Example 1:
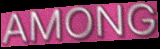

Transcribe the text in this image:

AMONG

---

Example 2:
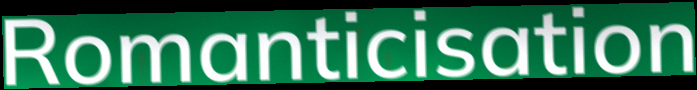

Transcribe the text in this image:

Romanticisation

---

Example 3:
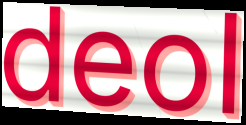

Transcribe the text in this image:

deol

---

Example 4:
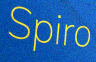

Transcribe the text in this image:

Spiro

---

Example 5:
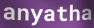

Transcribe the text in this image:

anyatha